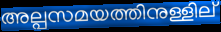
അല്പസമയത്തിനുള്ളില്